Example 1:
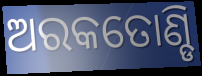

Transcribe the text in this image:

ଅରକତୋଣ୍ଡି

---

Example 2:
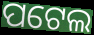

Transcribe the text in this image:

ପଟେଲ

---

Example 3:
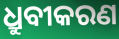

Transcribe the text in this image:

ଧ୍ରୁବୀକରଣ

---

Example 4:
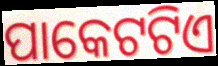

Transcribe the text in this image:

ପାକେଟଟିଏ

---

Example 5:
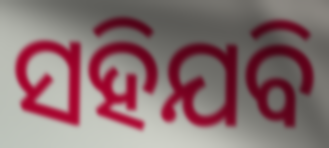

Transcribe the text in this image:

ସହିଯବି